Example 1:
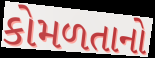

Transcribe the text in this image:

કોમળતાનો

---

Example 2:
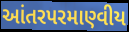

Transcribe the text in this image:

આંતરપરમાણ્વીય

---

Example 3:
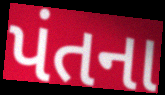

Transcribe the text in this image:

પંતના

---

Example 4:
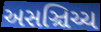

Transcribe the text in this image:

અસઞ્ચિચ્ચ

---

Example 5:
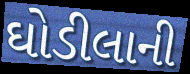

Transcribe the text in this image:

ઘોડીલાની